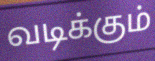
வடிக்கும்